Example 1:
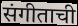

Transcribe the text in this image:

संगीताची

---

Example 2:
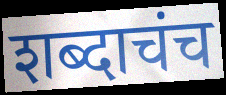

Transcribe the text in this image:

शब्दाचंच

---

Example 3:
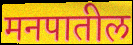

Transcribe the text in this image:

मनपातील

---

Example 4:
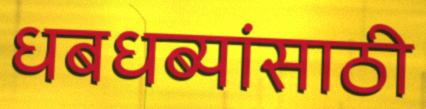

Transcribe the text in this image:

धबधब्यांसाठी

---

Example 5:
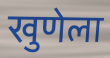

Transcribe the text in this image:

खुणेला